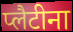
प्लैटीना